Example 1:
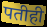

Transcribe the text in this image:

पतीही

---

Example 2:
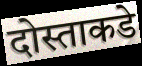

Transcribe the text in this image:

दोस्ताकडे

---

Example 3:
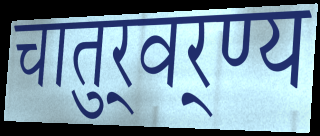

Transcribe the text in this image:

चातुर्वर्ण्य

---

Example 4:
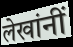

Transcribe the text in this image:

लेखांनीं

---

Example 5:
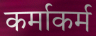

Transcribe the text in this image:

कर्माकर्म